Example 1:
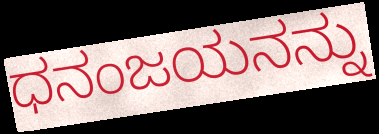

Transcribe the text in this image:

ಧನಂಜಯನನ್ನು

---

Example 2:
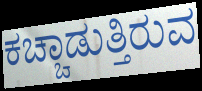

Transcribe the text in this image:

ಕಚ್ಚಾಡುತ್ತಿರುವ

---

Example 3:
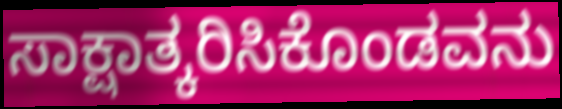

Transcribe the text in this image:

ಸಾಕ್ಷಾತ್ಕರಿಸಿಕೊಂಡವನು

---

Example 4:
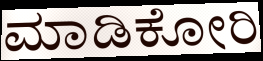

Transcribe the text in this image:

ಮಾಡಿಕೋರಿ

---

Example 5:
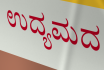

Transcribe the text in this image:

ಉದ್ಯಮದ